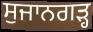
ਸੁਜਾਨਗੜ੍ਹ